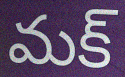
మక్